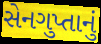
સેનગુપ્‍તાનું